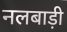
नलबाड़ी